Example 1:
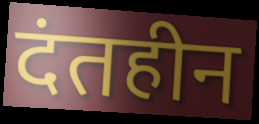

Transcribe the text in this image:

दंतहीन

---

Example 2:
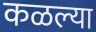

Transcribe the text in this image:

कळल्या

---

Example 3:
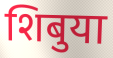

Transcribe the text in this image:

शिबुया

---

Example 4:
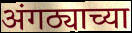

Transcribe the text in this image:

अंगठ्याच्या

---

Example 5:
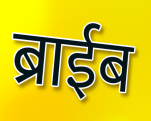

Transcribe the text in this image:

ब्राईब